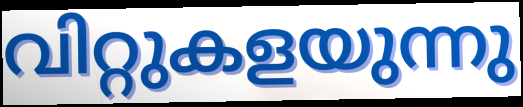
വിറ്റുകളയുന്നു